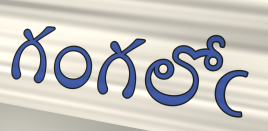
గంగలోఁ